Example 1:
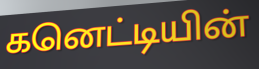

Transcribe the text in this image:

கனெட்டியின்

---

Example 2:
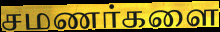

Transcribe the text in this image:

சமணர்களை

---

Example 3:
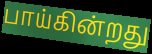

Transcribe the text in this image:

பாய்கின்றது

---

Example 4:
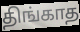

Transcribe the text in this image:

திங்காத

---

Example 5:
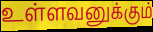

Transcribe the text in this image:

உள்ளவனுக்கும்